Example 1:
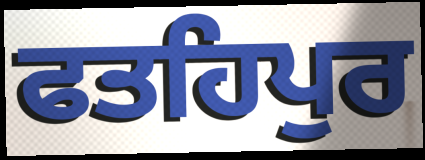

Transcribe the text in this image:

ਫਤਹਿਪੁਰ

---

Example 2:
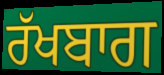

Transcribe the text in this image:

ਰੱਖਬਾਗ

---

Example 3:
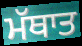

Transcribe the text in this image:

ਮੱਥਾਤ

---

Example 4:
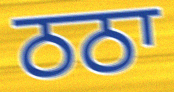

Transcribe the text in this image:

ਠਠਾ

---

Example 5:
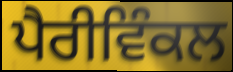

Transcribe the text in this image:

ਪੈਰੀਵਿੰਕਲ